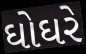
ઘોઘરે